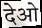
देओ